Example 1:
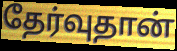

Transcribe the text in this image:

தேர்வுதான்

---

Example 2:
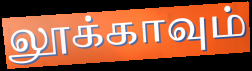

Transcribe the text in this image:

லூக்காவும்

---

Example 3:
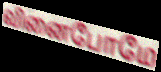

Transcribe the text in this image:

வினைபோமே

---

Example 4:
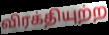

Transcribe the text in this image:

விரக்தியுற்ற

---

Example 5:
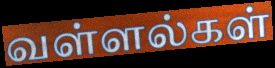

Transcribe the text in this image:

வள்ளல்கள்